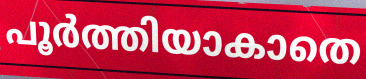
പൂർത്തിയാകാതെ